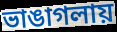
ভাঙাগলায়